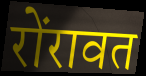
रोंरावत